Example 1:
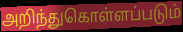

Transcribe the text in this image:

அறிந்துகொள்ளப்படும்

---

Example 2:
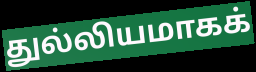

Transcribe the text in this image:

துல்லியமாகக்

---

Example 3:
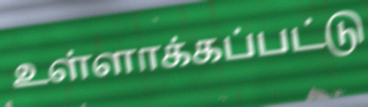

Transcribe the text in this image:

உள்ளாக்கப்பட்டு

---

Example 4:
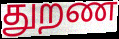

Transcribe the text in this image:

துறண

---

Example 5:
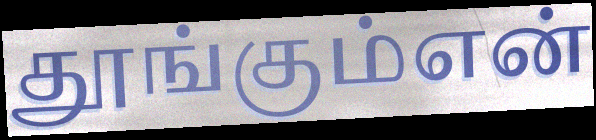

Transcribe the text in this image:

தூங்கும்என்